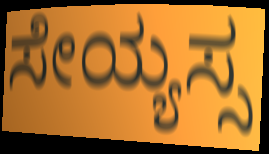
ಸೇಯ್ಯಸ್ಸ